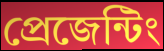
প্রেজেন্টিং